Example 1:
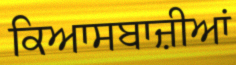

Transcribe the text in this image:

ਕਿਆਸਬਾਜ਼ੀਆਂ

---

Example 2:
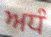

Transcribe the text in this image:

ਅਧੰ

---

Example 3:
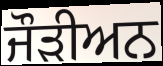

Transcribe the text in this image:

ਜੌੜੀਅਨ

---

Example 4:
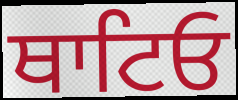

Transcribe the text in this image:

ਥਾਟਿਓ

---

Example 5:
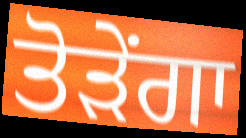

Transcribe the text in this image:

ਤੋੜੇਂਗਾ